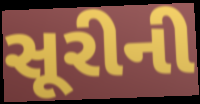
સૂરીની